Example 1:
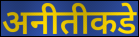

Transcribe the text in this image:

अनीतीकडे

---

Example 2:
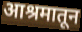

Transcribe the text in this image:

आश्रमातून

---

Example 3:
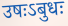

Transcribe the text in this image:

उषःऽबुधः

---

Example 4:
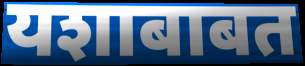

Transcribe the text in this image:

यशाबाबत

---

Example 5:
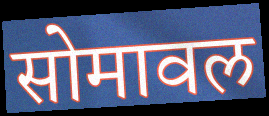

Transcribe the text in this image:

सोमावल